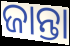
ଜାନ୍ତା